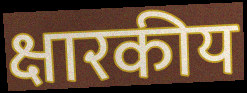
क्षारकीय